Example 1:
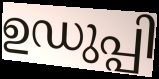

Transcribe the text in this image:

ഉഡുപ്പി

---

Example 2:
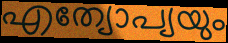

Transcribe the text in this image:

എത്യോപ്യയും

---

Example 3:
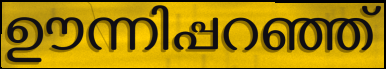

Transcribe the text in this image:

ഊന്നിപ്പറഞ്ഞ്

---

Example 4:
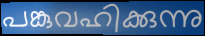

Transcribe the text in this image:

പങ്കുവഹിക്കുന്നു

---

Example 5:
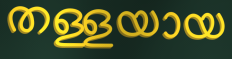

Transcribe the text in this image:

തള്ളയായ